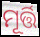
ମୂର୍ତ୍ତି